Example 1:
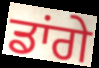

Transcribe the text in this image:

ਡਾਂਗੇ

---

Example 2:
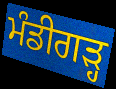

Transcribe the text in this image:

ਮੰਡੀਗੜ੍ਹ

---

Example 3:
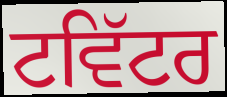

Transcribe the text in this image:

ਟਵਿੱਟਰ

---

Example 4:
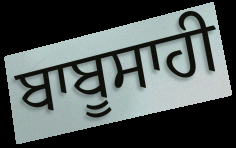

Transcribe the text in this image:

ਬਾਬੂਸਾਹੀ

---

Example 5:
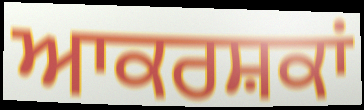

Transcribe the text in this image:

ਆਕਰਸ਼ਕਾਂ